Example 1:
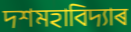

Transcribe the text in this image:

দশমহাবিদ্যাৰ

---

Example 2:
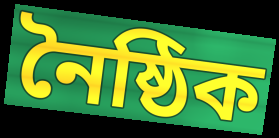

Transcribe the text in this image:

নৈষ্ঠিক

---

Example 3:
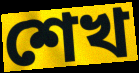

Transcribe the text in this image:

শেখ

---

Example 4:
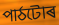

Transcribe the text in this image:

পাঠটোৰ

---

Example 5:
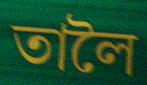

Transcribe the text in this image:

তালৈ